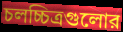
চলচ্চিত্রগুলোর